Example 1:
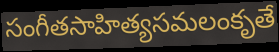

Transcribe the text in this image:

సంగీతసాహిత్యసమలంకృతే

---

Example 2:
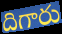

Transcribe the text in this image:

దిగారు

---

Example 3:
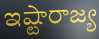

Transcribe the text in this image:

ఇష్టారాజ్య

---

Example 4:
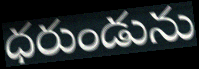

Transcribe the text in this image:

ధరుండును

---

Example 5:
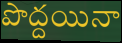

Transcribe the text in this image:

పొద్దయినా